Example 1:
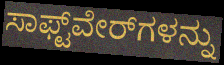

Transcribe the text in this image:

ಸಾಫ್ಟ್‌ವೇರ್‌ಗಳನ್ನು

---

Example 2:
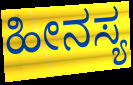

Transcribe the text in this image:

ಹೀನಸ್ಯ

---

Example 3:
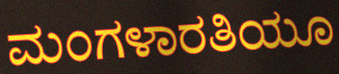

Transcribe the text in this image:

ಮಂಗಳಾರತಿಯೂ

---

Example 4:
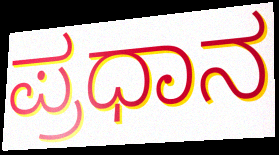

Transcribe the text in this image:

ಪ್ರಧಾನ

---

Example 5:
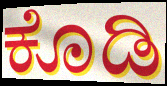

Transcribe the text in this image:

ಕೊಡಿ